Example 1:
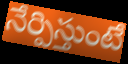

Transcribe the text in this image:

నేర్పిస్తుంటే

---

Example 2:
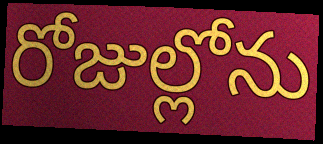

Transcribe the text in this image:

రోజుల్లోను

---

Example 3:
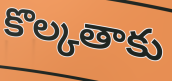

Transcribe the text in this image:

కొల్కతాకు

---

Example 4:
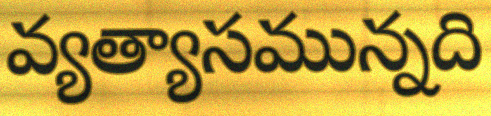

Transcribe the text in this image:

వ్యత్యాసమున్నది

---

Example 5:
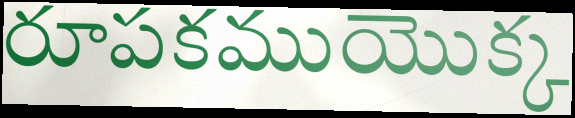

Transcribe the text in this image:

రూపకముయొక్క